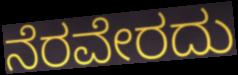
ನೆರವೇರದು